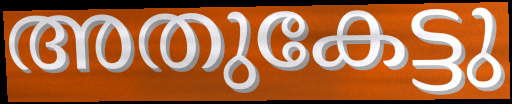
അതുകേട്ടു